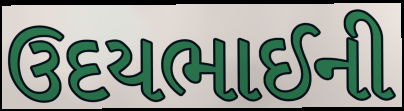
ઉદયભાઈની